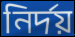
নির্দয়